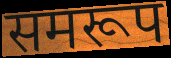
समरूप